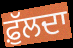
ਫ਼ੁੱਲਦਾ